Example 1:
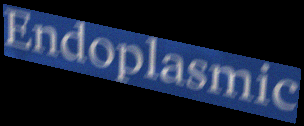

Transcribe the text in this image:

Endoplasmic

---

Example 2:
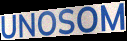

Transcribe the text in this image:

UNOSOM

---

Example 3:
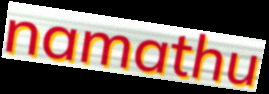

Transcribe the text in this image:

namathu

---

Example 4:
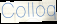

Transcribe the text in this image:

Colloq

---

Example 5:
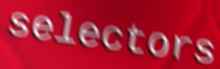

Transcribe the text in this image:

selectors